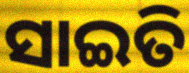
ସାଇତି